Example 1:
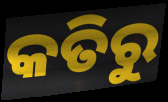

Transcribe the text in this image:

କତିରୁ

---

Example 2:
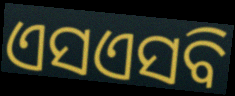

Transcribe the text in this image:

ଏସଏସବି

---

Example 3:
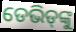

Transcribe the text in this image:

ଡେଭିଡ୍‌ଙ୍କୁ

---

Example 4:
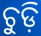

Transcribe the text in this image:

ଚୁଡ଼ି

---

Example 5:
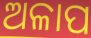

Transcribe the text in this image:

ଅଳାପ